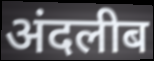
अंदलीब